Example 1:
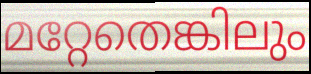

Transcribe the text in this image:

മറ്റേതെങ്കിലും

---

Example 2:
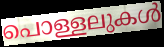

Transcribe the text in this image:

പൊള്ളലുകൾ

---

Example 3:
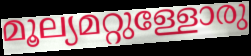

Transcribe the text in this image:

മൂല്യമറ്റുള്ളോരു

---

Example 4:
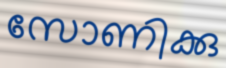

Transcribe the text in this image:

സോണിക്കു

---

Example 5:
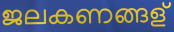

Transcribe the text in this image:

ജലകണങ്ങള്